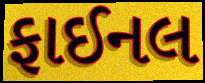
ફાઈનલ